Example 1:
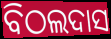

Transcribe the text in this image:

ବିଠଲଦାସ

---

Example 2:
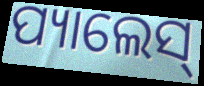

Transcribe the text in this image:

ପ୍ୟାଲେସ୍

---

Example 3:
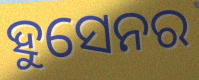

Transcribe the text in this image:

ହୁସେନର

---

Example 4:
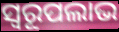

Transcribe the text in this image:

ସ୍ବରୂପଲାଭ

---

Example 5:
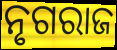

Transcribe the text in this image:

ନୃଗରାଜ